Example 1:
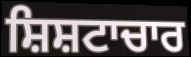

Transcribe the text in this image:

ਸ਼ਿਸ਼ਟਾਚਾਰ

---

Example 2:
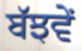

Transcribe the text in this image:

ਬੱਝਵੇਂ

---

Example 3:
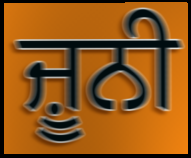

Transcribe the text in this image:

ਜ਼ੂਨੀ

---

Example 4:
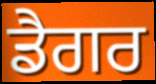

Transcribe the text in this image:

ਡੈਗਰ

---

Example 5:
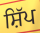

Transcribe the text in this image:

ਸ਼ਿੱਪ